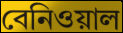
বেনিওয়াল